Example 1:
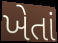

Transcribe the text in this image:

ખેતાં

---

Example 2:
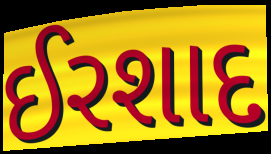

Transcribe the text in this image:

ઈરશાદ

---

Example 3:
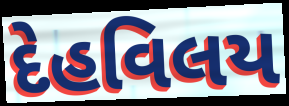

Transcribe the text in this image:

દેહવિલય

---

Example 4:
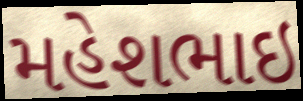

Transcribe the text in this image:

મહેશભાઇ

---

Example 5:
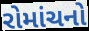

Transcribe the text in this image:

રોમાંચનો